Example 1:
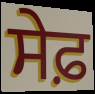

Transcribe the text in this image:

ਸੇਫ਼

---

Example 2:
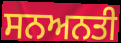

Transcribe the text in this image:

ਸਨਅਨਤੀ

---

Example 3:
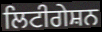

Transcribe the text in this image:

ਲਿਟੀਗੇਸ਼ਨ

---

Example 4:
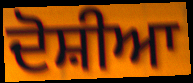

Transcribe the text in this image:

ਦੋਸ਼ੀਆ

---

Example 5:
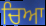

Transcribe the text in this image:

ਚਿਆ